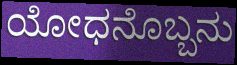
ಯೋಧನೊಬ್ಬನು